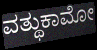
ವತ್ಥುಕಾಮೋ